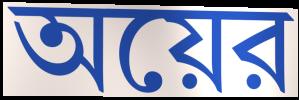
অয়ের